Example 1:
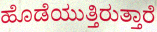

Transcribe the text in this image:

ಹೊಡೆಯುತ್ತಿರುತ್ತಾರೆ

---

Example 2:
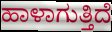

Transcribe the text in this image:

ಹಾಳಾಗುತ್ತಿದೆ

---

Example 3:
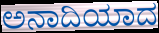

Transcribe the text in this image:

ಅನಾದಿಯಾದ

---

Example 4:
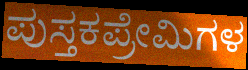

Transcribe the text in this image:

ಪುಸ್ತಕಪ್ರೇಮಿಗಳ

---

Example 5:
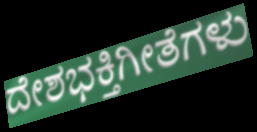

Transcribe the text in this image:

ದೇಶಭಕ್ತಿಗೀತೆಗಳು